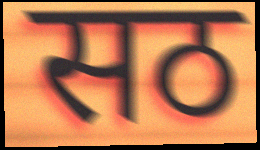
सठ